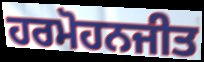
ਹਰਮੋਹਨਜੀਤ